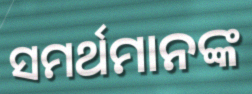
ସମର୍ଥମାନଙ୍କ